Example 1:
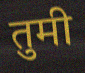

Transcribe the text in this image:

तुमी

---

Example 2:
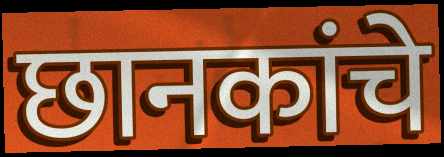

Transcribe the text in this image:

छानकांचे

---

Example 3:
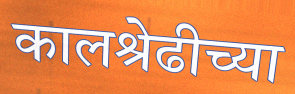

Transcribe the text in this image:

कालश्रेढीच्या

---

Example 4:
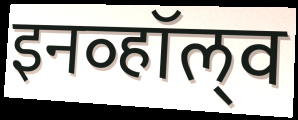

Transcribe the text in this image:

इनव्हॉल्व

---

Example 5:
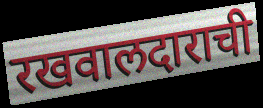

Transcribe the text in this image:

रखवालदाराची